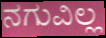
ನಗುವಿಲ್ಲ